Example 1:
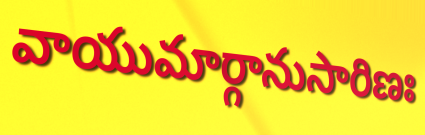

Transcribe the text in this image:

వాయుమార్గానుసారిణః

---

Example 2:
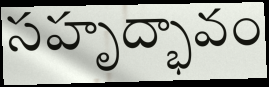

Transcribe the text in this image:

సహృద్భావం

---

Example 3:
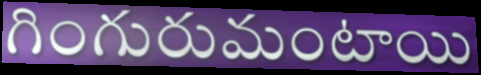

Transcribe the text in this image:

గింగురుమంటాయి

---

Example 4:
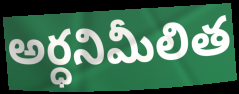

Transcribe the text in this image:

అర్ధనిమీలిత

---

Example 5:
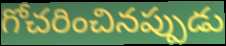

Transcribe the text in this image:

గోచరించినప్పుడు